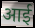
आई